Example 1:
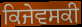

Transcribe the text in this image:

ਕਿਜੇਵਸਕੀ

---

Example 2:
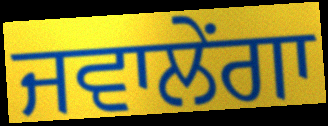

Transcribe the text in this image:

ਜਵਾਲੇਂਗਾ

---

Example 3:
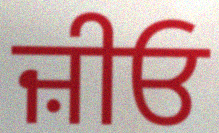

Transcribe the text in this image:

ਜ਼ੀਓ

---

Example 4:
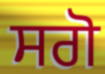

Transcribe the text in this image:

ਸਗੋ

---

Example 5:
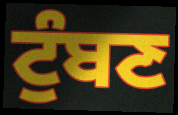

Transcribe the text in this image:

ਟੁੰਬਣ